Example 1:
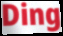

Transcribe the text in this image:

Ding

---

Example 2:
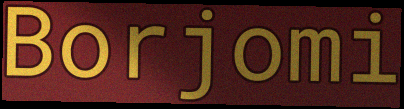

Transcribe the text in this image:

Borjomi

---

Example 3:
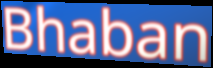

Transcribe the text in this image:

Bhaban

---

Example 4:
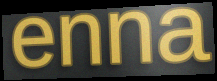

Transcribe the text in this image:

enna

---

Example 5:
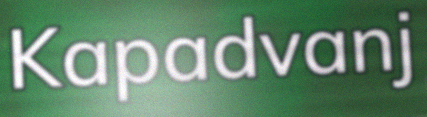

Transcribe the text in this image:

Kapadvanj